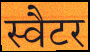
स्वैटर